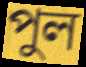
পুল